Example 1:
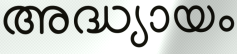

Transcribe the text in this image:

അദ്ധ്യായം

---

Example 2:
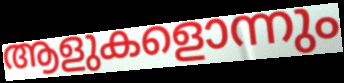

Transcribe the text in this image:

ആളുകളൊന്നും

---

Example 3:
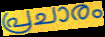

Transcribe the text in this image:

പ്രചാരം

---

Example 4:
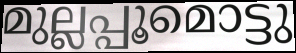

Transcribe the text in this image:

മുല്ലപ്പൂമൊട്ടു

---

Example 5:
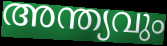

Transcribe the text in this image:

അന്ത്യവും